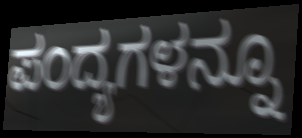
ಪಂದ್ಯಗಳನ್ನೂ